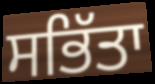
ਸਭਿੱਤਾ